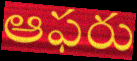
ఆఫరు